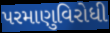
પરમાણુવિરોધી